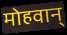
मोहवान्